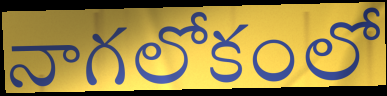
నాగలోకంలో